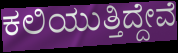
ಕಲಿಯುತ್ತಿದ್ದೇವೆ